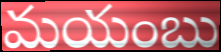
మయంబు